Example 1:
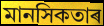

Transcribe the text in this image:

মানসিকতাৰ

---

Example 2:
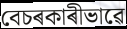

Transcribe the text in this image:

বেচৰকাৰীভাৱে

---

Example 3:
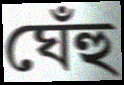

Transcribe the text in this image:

ঘেঁহু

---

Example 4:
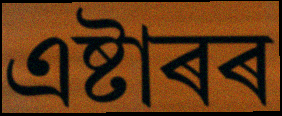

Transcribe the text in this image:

এষ্টাৰৰ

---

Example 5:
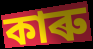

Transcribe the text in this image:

কাৰু